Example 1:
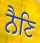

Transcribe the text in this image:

ਨੈਣਿ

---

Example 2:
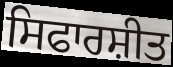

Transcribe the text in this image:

ਸਿਫਾਰਸ਼ੀਤ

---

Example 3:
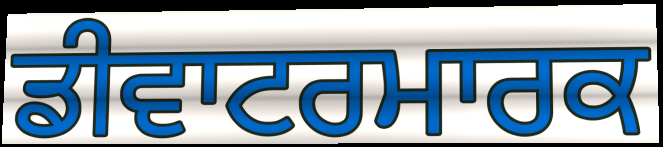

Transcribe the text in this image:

ਡੀਵਾਟਰਮਾਰਕ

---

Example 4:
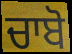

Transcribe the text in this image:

ਚਾਬੋ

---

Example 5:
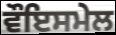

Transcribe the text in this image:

ਵੌਇਸਮੇਲ